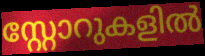
സ്റ്റോറുകളിൽ